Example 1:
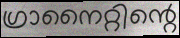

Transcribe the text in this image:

ഗ്രാനൈറ്റിന്റെ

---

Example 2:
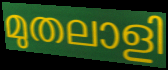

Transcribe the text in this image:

മുതലാളി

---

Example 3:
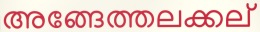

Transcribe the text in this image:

അങ്ങേത്തലക്കല്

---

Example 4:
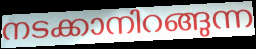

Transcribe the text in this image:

നടക്കാനിറങ്ങുന്ന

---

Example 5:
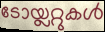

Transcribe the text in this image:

ടോയ്ലറ്റുകൾ